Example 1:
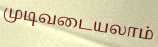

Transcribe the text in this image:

முடிவடையலாம்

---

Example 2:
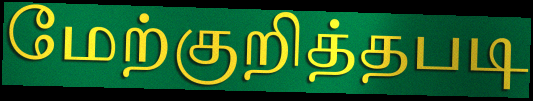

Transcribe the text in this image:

மேற்குறித்தபடி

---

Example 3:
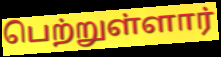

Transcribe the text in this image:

பெற்றுள்ளார்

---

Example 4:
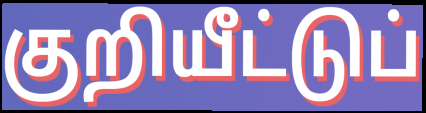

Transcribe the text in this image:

குறியீட்டுப்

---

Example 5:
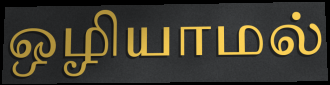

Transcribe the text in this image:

ஒழியாமல்